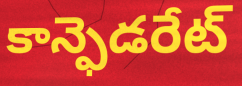
కాన్ఫెడరేట్